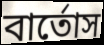
বার্তোস